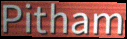
Pitham